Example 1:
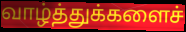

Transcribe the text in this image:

வாழ்த்துக்களைச்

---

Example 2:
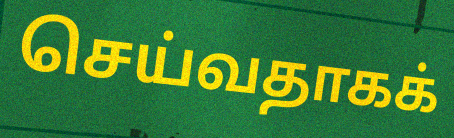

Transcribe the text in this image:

செய்வதாகக்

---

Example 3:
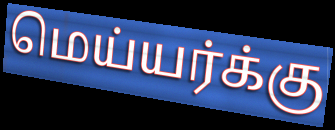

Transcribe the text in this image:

மெய்யர்க்கு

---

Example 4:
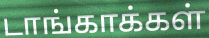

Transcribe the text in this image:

டாங்காக்கள்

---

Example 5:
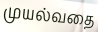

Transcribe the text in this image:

முயல்வதை